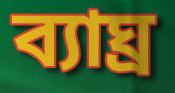
ব্যাঘ্র